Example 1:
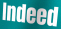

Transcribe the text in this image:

Indeed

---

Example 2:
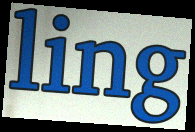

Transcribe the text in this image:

ling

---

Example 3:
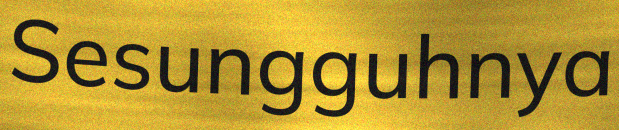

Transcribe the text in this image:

Sesungguhnya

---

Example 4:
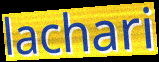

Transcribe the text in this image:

lachari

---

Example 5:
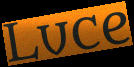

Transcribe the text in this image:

Luce